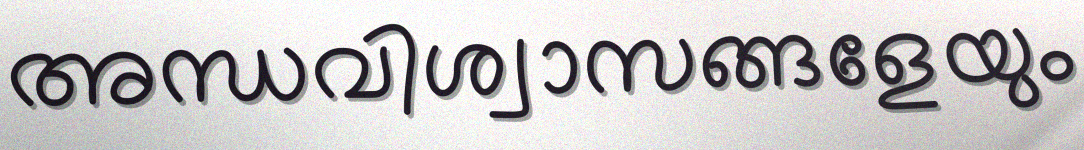
അന്ധവിശ്വാസങ്ങളേയും